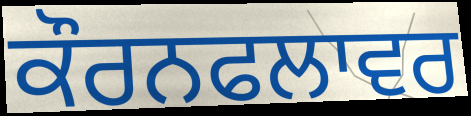
ਕੌਰਨਫਲਾਵਰ